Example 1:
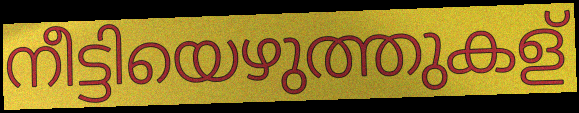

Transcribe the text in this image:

നീട്ടിയെഴുത്തുകള്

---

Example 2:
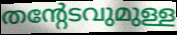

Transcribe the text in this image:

തന്റേടവുമുള്ള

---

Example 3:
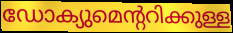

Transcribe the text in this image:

ഡോക്യുമെന്ററിക്കുള്ള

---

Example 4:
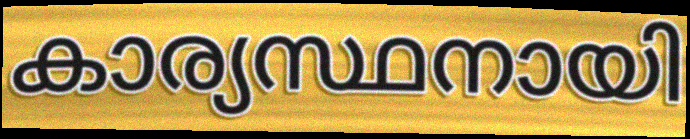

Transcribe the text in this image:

കാര്യസ്ഥനായി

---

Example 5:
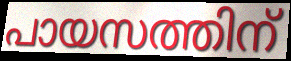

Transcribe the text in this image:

പായസത്തിന്